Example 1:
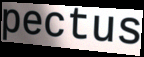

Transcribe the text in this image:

pectus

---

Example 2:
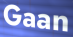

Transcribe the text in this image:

Gaan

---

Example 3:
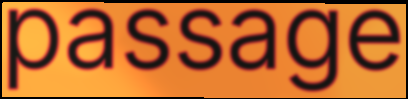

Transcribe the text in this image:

passage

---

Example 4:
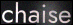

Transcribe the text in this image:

chaise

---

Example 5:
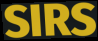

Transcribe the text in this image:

SIRS